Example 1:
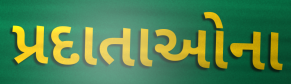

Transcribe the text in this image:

પ્રદાતાઓના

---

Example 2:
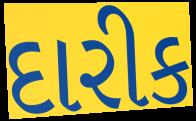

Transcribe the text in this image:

દારીક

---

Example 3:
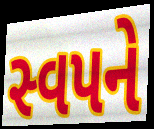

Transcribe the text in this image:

સ્વપને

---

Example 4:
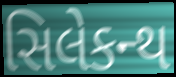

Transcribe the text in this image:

સિલેકન્થ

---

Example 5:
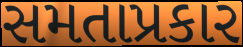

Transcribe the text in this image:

સમતાપ્રકાર